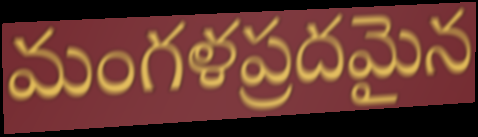
మంగళప్రదమైన